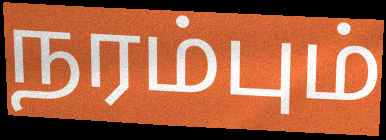
நரம்பும்